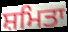
ਸ਼ਮਿਤਾ